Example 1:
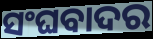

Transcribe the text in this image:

ସଂଘବାଦର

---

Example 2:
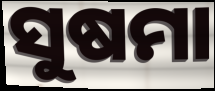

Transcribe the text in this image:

ସୁଷମା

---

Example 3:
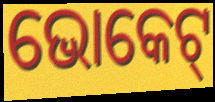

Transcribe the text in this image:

ଭୋକେଟ୍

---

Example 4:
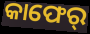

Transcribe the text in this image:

କାଫେର୍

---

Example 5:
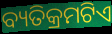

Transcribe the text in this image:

ବ୍ୟତିକ୍ରମଟିଏ